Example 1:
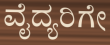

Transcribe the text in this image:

ವೈದ್ಯರಿಗೇ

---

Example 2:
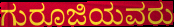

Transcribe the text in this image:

ಗುರೂಜಿಯವರು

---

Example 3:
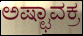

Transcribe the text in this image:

ಅಷ್ಟಾವಕ್ರ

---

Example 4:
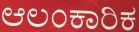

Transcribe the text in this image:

ಆಲಂಕಾರಿಕ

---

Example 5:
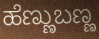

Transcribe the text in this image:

ಹೆಣ್ಣುಬಣ್ಣ